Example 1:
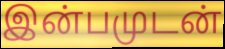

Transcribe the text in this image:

இன்பமுடன்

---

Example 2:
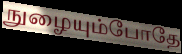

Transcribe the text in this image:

நுழையும்போதே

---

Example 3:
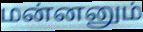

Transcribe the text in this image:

மன்னனும்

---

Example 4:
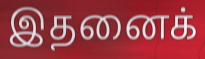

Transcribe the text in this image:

இதனைக்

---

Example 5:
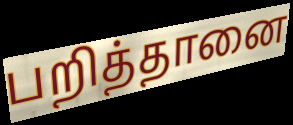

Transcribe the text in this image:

பறித்தானை